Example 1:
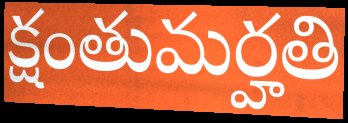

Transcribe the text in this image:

క్షంతుమర్హతి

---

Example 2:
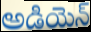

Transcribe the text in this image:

అడియెన్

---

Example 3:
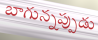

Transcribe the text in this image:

బాగున్నప్పుడు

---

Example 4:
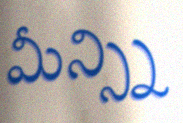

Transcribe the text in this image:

మీన్స్ని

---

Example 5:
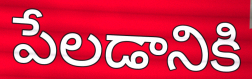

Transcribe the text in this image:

పేలడానికి